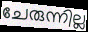
ചേരുന്നില്ല